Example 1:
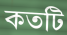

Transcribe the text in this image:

কতটি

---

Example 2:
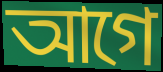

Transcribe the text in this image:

আগে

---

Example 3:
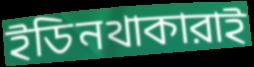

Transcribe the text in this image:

ইডিনথাকারাই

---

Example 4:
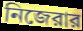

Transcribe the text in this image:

নিজেরার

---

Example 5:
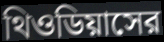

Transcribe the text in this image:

থিওডিয়াসের